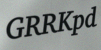
GRRKpd